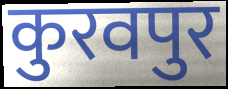
कुरवपुर